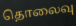
தொலைவு